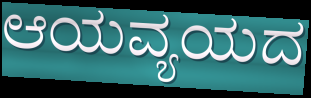
ಆಯವ್ಯಯದ